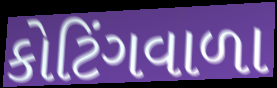
કોટિંગવાળા